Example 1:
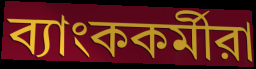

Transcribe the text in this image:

ব্যাংককর্মীরা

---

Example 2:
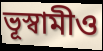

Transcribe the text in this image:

ভূস্বামীও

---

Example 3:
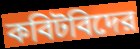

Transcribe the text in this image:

কবিটবিদের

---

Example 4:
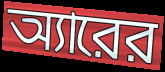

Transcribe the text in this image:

অ্যারের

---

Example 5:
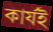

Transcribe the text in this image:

কার্যই